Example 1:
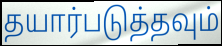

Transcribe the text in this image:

தயார்படுத்தவும்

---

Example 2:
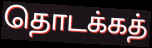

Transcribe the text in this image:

தொடக்கத்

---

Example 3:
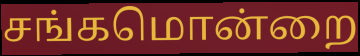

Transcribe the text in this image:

சங்கமொன்றை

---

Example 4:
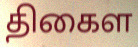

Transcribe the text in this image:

திகைள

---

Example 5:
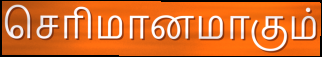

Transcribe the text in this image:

செரிமானமாகும்